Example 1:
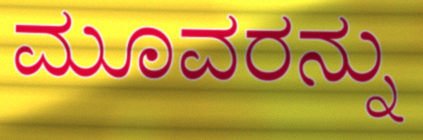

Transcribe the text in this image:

ಮೂವರನ್ನು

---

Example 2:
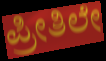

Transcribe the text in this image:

ಪ್ರೀತಿಲೇ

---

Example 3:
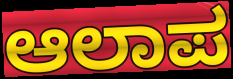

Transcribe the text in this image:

ಆಲಾಪ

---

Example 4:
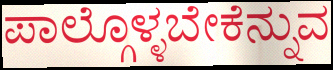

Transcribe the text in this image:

ಪಾಲ್ಗೊಳ್ಳಬೇಕೆನ್ನುವ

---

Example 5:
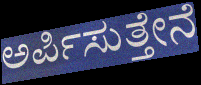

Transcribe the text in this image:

ಅರ್ಪಿಸುತ್ತೇನೆ